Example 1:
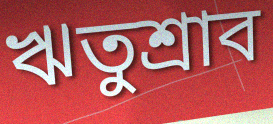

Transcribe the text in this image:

ঋতুশ্রাব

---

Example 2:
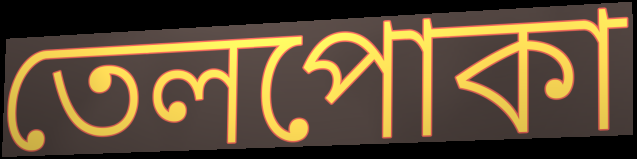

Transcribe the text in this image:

তেলপোকা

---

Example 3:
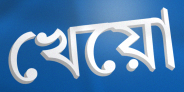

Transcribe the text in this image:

খেয়ো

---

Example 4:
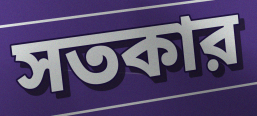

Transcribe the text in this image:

সতকার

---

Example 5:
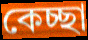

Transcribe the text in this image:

কেচ্ছা